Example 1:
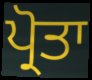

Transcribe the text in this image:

ਪ੍ਰੋਤਾ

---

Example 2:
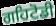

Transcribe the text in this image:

ਗਹਿਟੋਡੀ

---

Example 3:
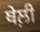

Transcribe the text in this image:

ਥੇਲ਼ੀ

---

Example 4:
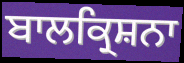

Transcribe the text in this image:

ਬਾਲਕ੍ਰਿਸ਼ਨਾ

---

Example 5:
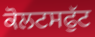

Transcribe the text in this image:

ਕੋਲਟਸਫੁੱਟ